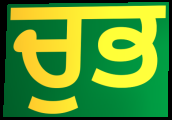
ਚੁਭ